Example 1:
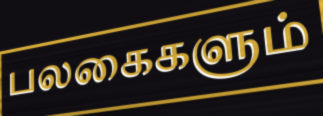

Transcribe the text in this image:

பலகைகளும்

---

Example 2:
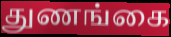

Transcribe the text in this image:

துணங்கை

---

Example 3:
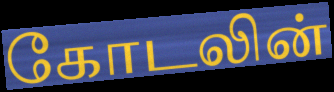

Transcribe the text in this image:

கோடலின்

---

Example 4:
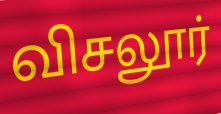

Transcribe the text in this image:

விசலூர்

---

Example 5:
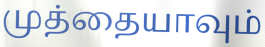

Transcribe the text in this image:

முத்தையாவும்